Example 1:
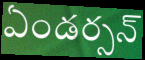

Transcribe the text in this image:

ఏండర్సన్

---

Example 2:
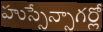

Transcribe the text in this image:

హుస్సేన్సాగర్లో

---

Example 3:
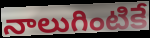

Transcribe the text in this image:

నాలుగింటికే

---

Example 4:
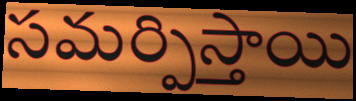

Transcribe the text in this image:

సమర్పిస్తాయి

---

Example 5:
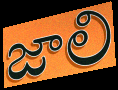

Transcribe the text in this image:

జాలి